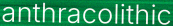
anthracolithic